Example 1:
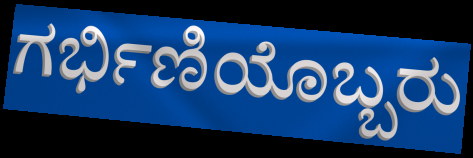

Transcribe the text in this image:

ಗರ್ಭಿಣಿಯೊಬ್ಬರು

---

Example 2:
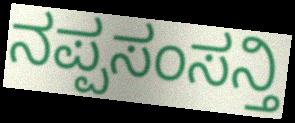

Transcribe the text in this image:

ನಪ್ಪಸಂಸನ್ತಿ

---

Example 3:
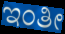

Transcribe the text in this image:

ಇಂತೀ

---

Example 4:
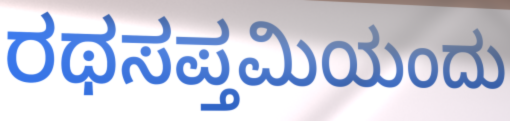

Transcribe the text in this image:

ರಥಸಪ್ತಮಿಯಂದು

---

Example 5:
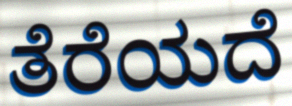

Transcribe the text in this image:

ತೆರೆಯದೆ